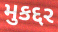
મુકદ્દર